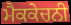
ਮੈਕਕੇਚਨੀ